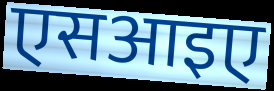
एसआइए